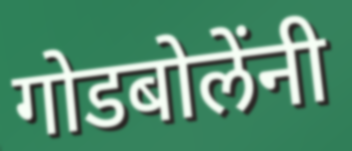
गोडबोलेंनी